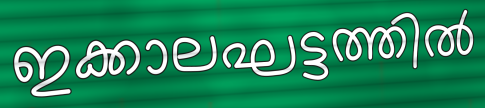
ഇക്കാലഘട്ടത്തിൽ